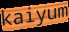
kaiyum